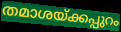
തമാശയ്ക്കപ്പുറം